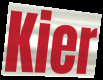
Kier